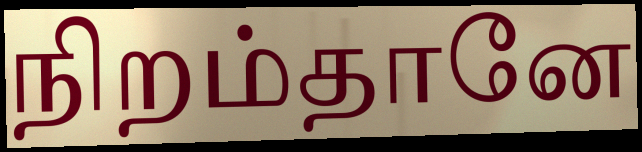
நிறம்தானே